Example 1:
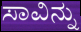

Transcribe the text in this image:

ಸಾವಿನ್ನು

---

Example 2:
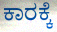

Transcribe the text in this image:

ಕಾರಕ್ಕೆ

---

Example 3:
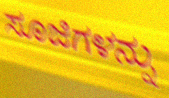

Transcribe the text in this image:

ಸೂಜಿಗಳನ್ನು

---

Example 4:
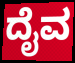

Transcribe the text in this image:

ದೈವ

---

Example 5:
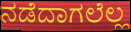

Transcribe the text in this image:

ನಡೆದಾಗಲೆಲ್ಲ